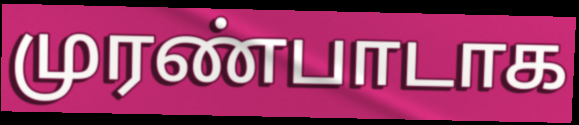
முரண்பாடாக